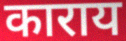
काराय